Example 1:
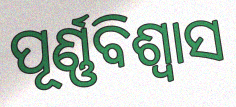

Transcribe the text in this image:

ପୂର୍ଣ୍ଣବିଶ୍ଵାସ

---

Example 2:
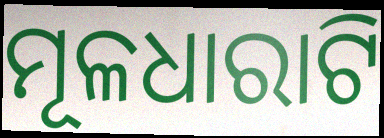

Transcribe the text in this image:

ମୂଳଧାରାଟି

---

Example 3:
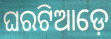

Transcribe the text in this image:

ଘରଟିଆଡ଼େ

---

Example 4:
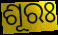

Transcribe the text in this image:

ଶୂରଃ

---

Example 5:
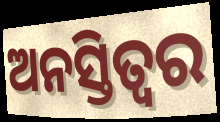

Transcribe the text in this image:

ଅନସ୍ତିତ୍ୱର